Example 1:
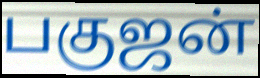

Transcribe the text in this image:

பகுஜன்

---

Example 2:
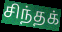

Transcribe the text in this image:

சிந்தக்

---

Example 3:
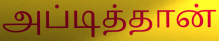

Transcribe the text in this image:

அப்டித்தான்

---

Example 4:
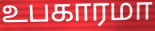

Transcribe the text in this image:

உபகாரமா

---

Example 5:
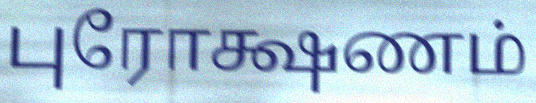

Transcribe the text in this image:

புரோக்ஷணம்